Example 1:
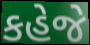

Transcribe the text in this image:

કહેજે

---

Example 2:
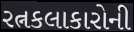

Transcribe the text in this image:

રત્નકલાકારોની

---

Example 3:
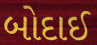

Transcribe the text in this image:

બોદાઈ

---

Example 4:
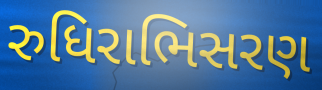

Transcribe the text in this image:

રુધિરાભિસરણ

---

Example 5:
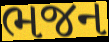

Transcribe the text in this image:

ભજન